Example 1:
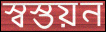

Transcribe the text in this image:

স্বস্তয়ন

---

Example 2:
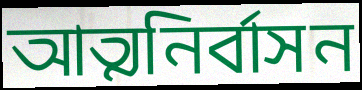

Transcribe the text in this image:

আত্মনির্বাসন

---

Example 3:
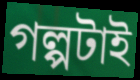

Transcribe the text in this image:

গল্পটাই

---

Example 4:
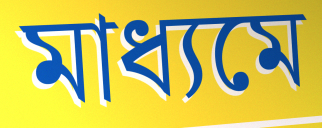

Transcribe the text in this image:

মাধ্যমে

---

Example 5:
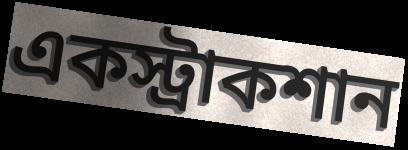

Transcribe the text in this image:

একস্ট্রাকশান